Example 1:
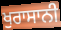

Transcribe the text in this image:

ਖੁਰਾਸਾਨੀ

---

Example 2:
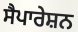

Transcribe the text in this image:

ਸੈਪਾਰੇਸ਼ਨ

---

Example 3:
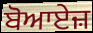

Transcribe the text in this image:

ਬੋਆਏਜ਼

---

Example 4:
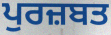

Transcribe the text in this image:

ਪੁਰਜ਼ਬਤ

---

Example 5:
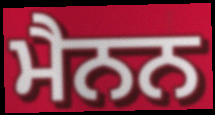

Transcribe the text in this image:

ਮੈਨਨ